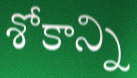
శోకాన్ని